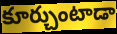
కూర్చుంటాడా